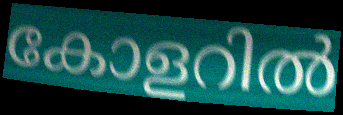
കോളറിൽ